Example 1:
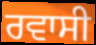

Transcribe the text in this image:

ਰਵਾਸੀ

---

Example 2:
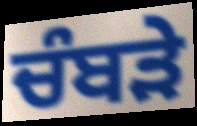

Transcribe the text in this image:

ਚੰਬੜੇ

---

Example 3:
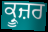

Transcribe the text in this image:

ਕ੍ਰੂਜ਼ਰ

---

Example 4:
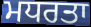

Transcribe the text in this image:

ਮਧਰਤਾ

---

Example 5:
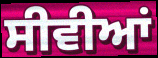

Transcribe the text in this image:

ਸੀਵੀਆਂ